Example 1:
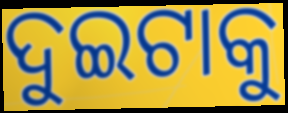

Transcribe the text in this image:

ଦୁଇଟାକୁ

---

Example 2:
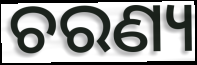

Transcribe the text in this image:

ଚରଣ୍ୟ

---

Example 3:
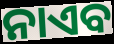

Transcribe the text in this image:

ନାଏବ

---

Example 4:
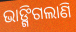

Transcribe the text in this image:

ଭାଙ୍ଗିଗଲାଣି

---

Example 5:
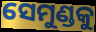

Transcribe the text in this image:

ସେମୁଣ୍ଡକୁ